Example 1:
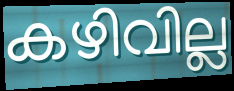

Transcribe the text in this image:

കഴിവില്ല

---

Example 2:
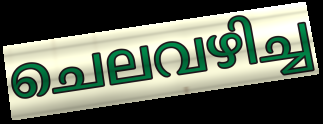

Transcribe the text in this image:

ചെലവഴിച്ച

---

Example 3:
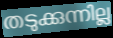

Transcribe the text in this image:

തടുക്കുന്നില്ല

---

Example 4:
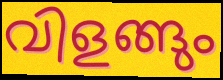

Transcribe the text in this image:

വിളങ്ങും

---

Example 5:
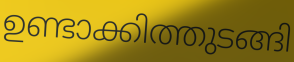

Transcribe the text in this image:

ഉണ്ടാക്കിത്തുടങ്ങി